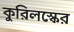
কুরিলস্কের